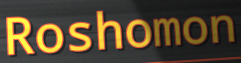
Roshomon